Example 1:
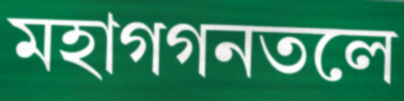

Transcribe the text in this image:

মহাগগনতলে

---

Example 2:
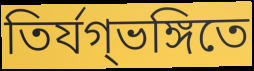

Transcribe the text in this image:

তির্যগ্ভঙ্গিতে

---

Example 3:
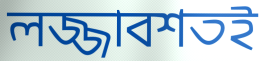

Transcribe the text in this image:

লজ্জাবশতই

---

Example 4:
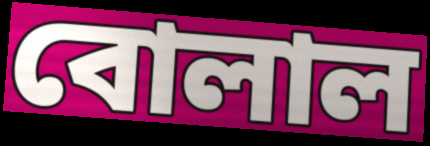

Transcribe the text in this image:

বোলাল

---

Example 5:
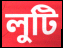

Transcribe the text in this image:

লুটি